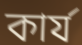
কাৰ্য